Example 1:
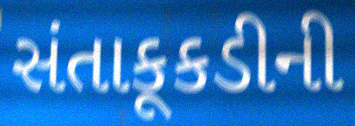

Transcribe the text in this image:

સંતાકૂકડીની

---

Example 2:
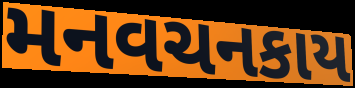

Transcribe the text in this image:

મનવચનકાય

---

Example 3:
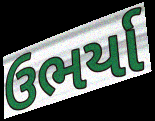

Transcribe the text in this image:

ઉભર્યા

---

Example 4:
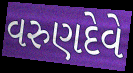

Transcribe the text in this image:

વરુણદેવે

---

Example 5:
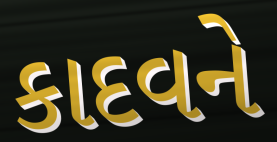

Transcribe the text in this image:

કાદવને